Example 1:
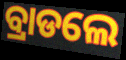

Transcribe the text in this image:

ବ୍ରାଡଲେ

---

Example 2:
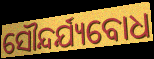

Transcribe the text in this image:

ସୌନ୍ଦର୍ଯ୍ୟବୋଧ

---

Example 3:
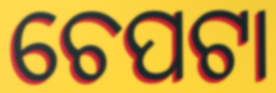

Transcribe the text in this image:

ଚେପଟା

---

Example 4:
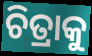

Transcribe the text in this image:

ଚିତ୍ରାକୁ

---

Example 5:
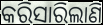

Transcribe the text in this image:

କରିସାରିଲାଣି